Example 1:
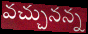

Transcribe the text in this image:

వచ్చునన్న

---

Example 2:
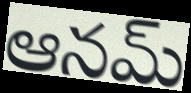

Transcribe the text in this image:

ఆనమ్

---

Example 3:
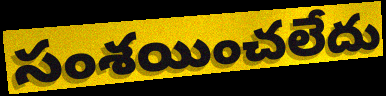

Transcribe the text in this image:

సంశయించలేదు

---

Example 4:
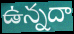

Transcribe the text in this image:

ఉన్నదా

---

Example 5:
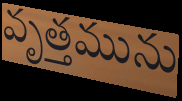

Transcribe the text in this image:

వృత్తమును